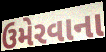
ઉમેરવાના